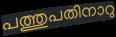
പത്തുപതിനാറു